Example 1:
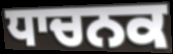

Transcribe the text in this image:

ਧਾਚਨਕ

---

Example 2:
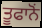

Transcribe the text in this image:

ਤੂਫਾਨੋਂ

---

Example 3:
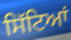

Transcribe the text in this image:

ਸਿੱਟਿਆਂ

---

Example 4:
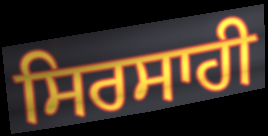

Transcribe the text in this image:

ਸਿਰਸਾਹੀ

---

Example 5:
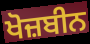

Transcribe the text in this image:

ਖੋਜ਼ਬੀਨ